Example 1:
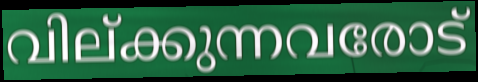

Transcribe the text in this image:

വില്ക്കുന്നവരോട്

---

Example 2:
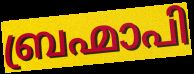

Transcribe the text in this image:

ബ്രഹ്മാപി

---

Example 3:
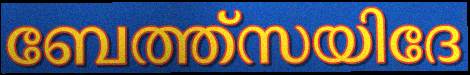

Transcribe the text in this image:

ബേത്ത്സയിദേ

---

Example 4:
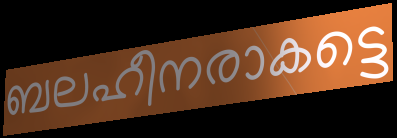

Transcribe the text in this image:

ബലഹീനരാകട്ടെ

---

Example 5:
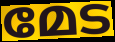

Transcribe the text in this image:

മേട